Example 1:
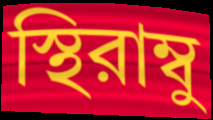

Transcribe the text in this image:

স্থিরাম্বু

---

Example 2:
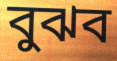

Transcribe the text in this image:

বুঝব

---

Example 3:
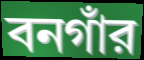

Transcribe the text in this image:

বনগাঁর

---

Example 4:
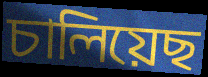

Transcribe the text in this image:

চালিয়েছ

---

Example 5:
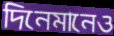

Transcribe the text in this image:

দিনেমানেও